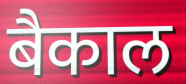
बैकाल